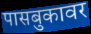
पासबुकावर